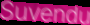
Suvendu